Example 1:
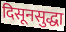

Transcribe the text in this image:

दिसूनसुद्धा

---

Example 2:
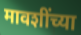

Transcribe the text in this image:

मावशींच्या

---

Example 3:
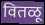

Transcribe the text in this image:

वितळू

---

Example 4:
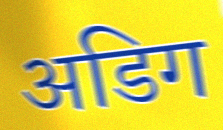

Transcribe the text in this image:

अडिग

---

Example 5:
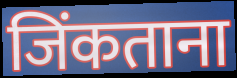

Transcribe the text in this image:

जिंकताना